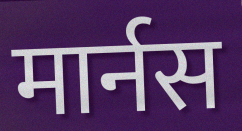
मार्नस